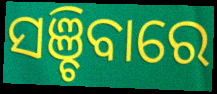
ସଞ୍ଚିବାରେ